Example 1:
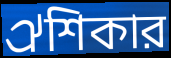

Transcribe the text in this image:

ঐশিকার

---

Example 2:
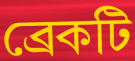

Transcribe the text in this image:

ব্রেকটি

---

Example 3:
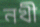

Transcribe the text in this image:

নখী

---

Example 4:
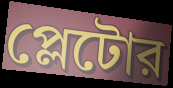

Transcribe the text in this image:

প্লেটোর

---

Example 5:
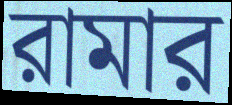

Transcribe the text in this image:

রামার